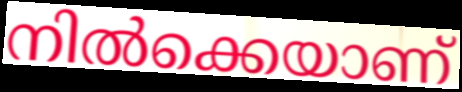
നിൽക്കെയാണ്